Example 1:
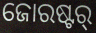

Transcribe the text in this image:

ଜୋରଷ୍ଟର୍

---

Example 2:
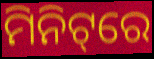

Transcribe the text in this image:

ମିନିଟ୍‌ରେ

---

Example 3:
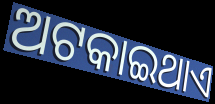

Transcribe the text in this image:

ଅଟକାଇଥାଏ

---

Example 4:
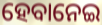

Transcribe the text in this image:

ହେବାନେଇ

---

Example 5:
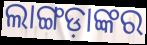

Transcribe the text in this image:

ଲାଙ୍ଗଡ଼ାଙ୍କର